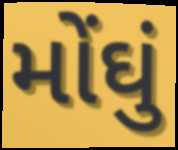
મોંઘું